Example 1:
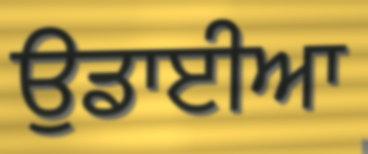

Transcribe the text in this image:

ਉਡਾਈਆ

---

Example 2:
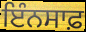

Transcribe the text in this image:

ਇੰਨਸਾਫ਼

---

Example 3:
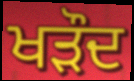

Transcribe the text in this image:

ਖੜੌਦ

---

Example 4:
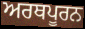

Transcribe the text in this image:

ਅਰਥਪੂਰਨ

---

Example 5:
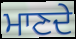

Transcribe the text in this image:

ਮਾਣਦੇ